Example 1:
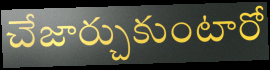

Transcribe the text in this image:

చేజార్చుకుంటారో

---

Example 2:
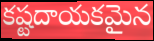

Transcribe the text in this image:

కష్టదాయకమైన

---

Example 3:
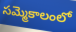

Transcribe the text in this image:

సమ్మెకాలంలో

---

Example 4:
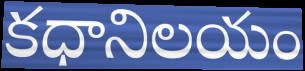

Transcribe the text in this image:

కధానిలయం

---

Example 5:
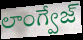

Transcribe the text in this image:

లాంగ్వేజ్